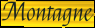
Montagne